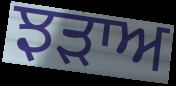
ਝੜਾਅ